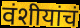
वंशीयांचं